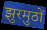
झुरमुठों